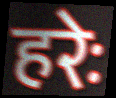
हरेः